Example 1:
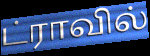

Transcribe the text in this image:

ட்ராவில்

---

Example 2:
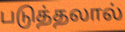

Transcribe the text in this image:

படுத்தலால்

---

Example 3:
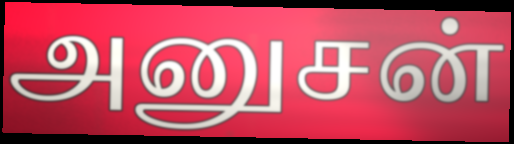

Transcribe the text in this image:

அனுசன்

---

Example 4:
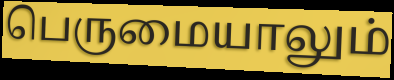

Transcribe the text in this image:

பெருமையாலும்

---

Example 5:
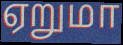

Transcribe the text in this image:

ஏறுமா